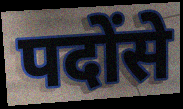
पदोंसे